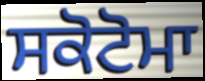
ਸਕੋਟੋਮਾ